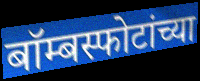
बॉम्बस्फोटांच्या